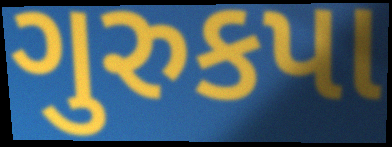
ગુરુકપા